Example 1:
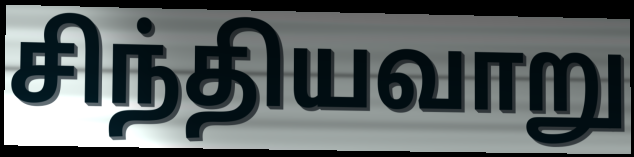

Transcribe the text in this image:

சிந்தியவாறு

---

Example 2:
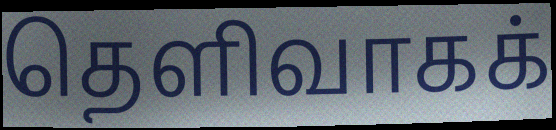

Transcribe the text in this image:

தெளிவாகக்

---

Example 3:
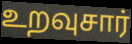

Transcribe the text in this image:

உறவுசார்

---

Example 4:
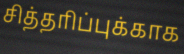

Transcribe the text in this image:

சித்தரிப்புக்காக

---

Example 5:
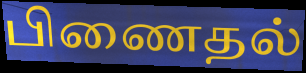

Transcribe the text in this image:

பிணைதல்